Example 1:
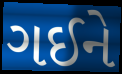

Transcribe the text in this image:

ગઈને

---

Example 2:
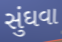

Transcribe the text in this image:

સુંઘવા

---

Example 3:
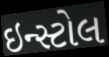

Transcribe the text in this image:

ઇન્સ્ટોલ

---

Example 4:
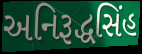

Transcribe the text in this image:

અનિરૂદ્ધસિંહ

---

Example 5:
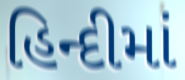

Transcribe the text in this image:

હિન્દીમાં